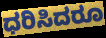
ಧರಿಸಿದರೂ